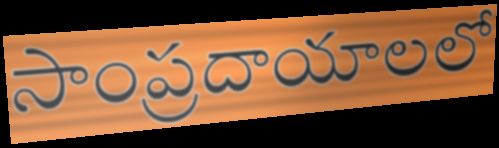
సాంప్రదాయాలలో